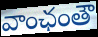
వాంఛంతౌ